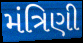
મંત્રિણી